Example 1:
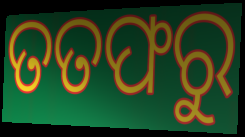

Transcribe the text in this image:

ତତଫରୁ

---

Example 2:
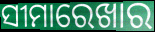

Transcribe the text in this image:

ସୀମାରେଖାର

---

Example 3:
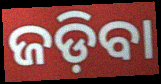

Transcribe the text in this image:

ଜଡ଼ିବା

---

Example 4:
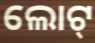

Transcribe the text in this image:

ଲୋଟ୍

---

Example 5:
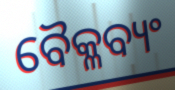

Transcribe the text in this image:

ବୈକ୍ଳବ୍ୟଂ